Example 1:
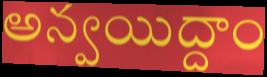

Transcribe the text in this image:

అన్వయిద్దాం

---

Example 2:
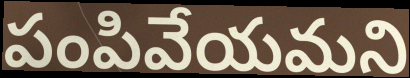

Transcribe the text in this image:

పంపివేయమని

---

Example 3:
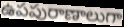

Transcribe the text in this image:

ఉపపురాణాలుగా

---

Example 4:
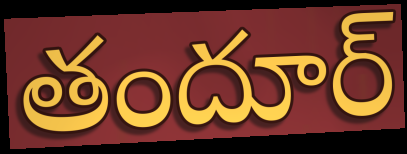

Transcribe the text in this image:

తందూర్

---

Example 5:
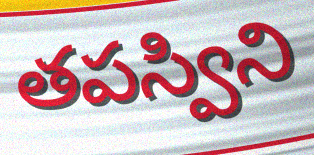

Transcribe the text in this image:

తపస్విని